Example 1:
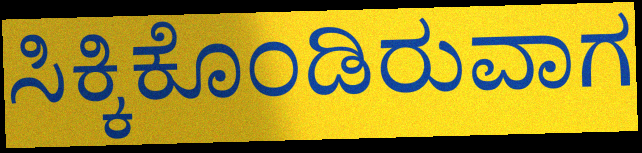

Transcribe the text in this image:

ಸಿಕ್ಕಿಕೊಂಡಿರುವಾಗ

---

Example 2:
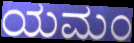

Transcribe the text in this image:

ಯಮಂ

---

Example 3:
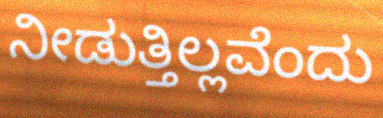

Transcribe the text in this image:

ನೀಡುತ್ತಿಲ್ಲವೆಂದು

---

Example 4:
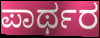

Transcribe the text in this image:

ಪಾರ್ಥರ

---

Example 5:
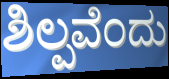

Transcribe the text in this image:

ಶಿಲ್ಪವೆಂದು